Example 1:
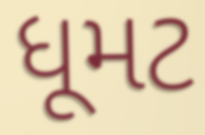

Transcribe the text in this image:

ધૂમટ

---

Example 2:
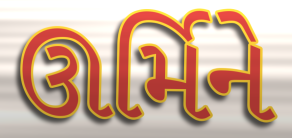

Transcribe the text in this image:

ઊર્મિને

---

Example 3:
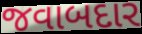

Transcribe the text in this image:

જવાબદાર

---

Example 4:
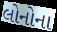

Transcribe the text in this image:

લોનોના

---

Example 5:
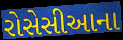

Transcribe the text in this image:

રોસેસીઆના